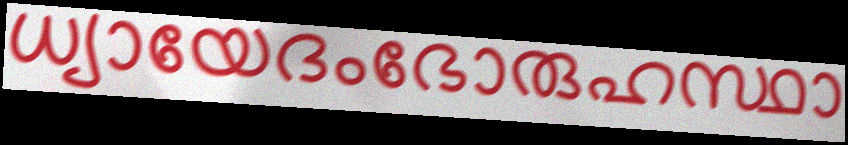
ധ്യായേദംഭോരുഹസ്ഥാ